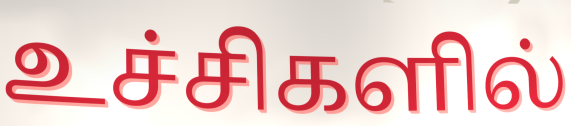
உச்சிகளில்